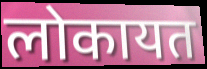
लोकायत